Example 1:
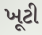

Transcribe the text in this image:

ખૂટી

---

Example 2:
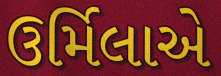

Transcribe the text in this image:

ઉર્મિલાએ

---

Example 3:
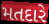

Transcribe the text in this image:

મતદારે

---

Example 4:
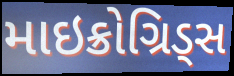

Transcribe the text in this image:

માઇક્રોગ્રિડ્સ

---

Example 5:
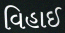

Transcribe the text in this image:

વિહાઈ